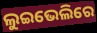
ଲୁଇଭେଲିରେ